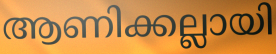
ആണിക്കല്ലായി